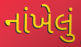
નાંખેલું